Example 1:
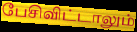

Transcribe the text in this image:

பேசிவிட்டாலும்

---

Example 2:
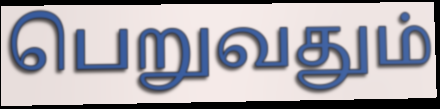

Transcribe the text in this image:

பெறுவதும்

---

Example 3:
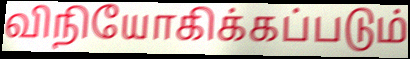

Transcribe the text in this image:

விநியோகிக்கப்படும்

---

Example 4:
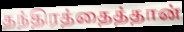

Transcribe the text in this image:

தந்திரத்தைத்தான்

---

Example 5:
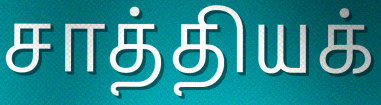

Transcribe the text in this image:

சாத்தியக்